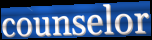
counselor